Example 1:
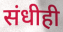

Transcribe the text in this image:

संधीही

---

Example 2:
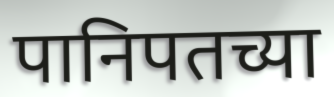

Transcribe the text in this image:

पानिपतच्या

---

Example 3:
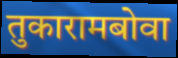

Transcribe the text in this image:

तुकारामबोवा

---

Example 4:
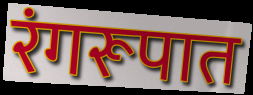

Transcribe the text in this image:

रंगरूपात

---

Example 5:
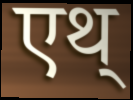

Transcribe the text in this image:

एथ्